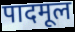
पादमूल